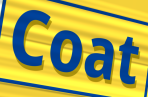
Coat